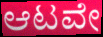
ಆಟವೇ